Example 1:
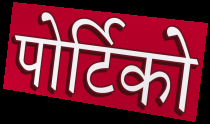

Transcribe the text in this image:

पोर्टिको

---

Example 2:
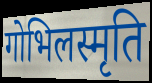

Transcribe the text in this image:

गोभिलस्मृति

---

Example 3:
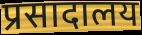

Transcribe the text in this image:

प्रसादालय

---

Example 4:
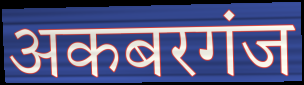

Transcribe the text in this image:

अकबरगंज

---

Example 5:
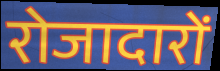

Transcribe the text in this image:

रोजादारों